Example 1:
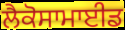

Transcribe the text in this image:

ਲੈਕੋਸਾਮਾਈਡ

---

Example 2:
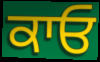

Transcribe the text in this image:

ਕਾਓ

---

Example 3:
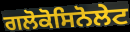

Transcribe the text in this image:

ਗਲੋਕੋਸਿਨੋਲੇਟ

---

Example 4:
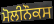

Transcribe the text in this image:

ਮੋਲੀਨੌਕਸ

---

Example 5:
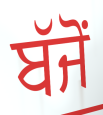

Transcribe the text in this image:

ਬੱਜੋਂ